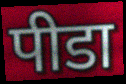
पीडा